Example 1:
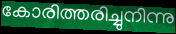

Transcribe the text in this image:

കോരിത്തരിച്ചുനിന്നു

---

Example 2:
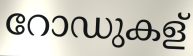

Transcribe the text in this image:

റോഡുകള്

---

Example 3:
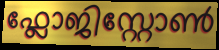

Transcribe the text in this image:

ഫ്ലോജിസ്റ്റോൺ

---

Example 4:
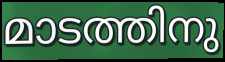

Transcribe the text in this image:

മാടത്തിനു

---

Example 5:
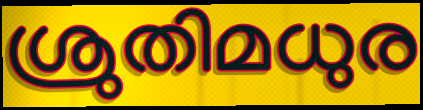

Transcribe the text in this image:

ശ്രുതിമധുര